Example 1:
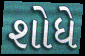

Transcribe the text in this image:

શોધે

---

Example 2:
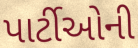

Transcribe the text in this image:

પાર્ટીઓની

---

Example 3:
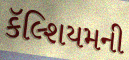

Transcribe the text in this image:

કૅલ્શિયમની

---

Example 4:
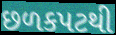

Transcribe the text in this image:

છળકપટથી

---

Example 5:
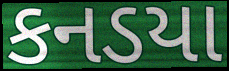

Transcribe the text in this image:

કનડયા